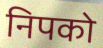
निपको